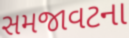
સમજાવટના